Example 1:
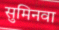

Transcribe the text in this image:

सुमिनवा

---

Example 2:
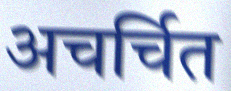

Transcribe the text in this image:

अचर्चित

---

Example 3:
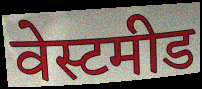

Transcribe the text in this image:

वेस्टमीड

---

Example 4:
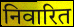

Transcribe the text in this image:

निवारित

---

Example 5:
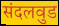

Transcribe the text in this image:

संदलवुड